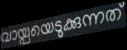
വായ്പയെടുക്കുന്നത്